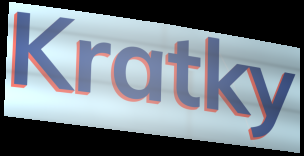
Kratky